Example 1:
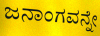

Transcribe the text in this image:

ಜನಾಂಗವನ್ನೇ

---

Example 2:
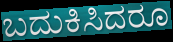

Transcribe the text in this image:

ಬದುಕಿಸಿದರೂ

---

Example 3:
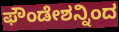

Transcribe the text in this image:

ಫೌಂಡೇಶನ್ನಿಂದ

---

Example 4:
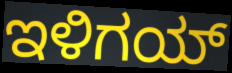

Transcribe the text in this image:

ಇಳಿಗಯ್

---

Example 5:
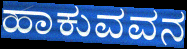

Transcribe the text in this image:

ಹಾಕುವವನ